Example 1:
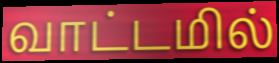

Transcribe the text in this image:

வாட்டமில்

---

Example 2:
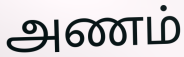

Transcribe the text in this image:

அணம்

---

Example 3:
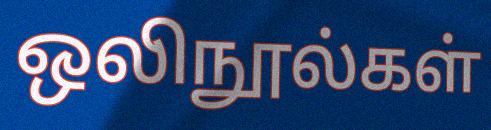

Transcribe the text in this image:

ஒலிநூல்கள்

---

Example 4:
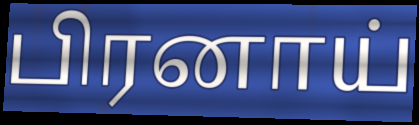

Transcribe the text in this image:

பிரனாய்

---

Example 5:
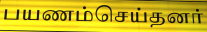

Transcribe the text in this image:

பயணம்செய்தனர்